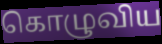
கொழுவிய